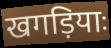
खगड़ियाः